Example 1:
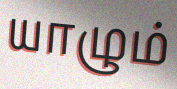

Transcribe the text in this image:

யாழும்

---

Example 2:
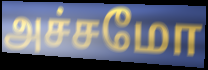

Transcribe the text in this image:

அச்சமோ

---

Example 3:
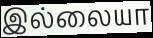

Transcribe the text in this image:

இல்லையா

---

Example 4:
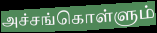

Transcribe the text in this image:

அச்சங்கொள்ளும்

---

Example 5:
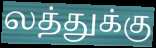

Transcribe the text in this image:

லத்துக்கு